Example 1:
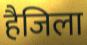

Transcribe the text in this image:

हैजिला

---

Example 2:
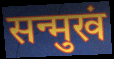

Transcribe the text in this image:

सन्मुखं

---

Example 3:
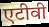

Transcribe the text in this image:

एटीवी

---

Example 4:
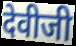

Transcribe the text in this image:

देवीजी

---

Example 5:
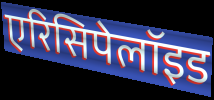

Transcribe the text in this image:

एरिसिपेलॉइड